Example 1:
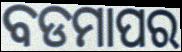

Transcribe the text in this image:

ବଡମାପର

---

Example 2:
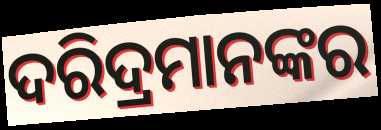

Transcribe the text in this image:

ଦରିଦ୍ରମାନଙ୍କର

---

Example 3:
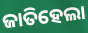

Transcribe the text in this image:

ଜାତିହେଲା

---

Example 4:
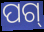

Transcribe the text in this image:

ପଗ୍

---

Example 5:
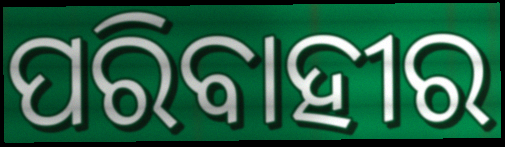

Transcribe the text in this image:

ପରିବାହୀର